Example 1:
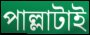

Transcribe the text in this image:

পাল্লাটাই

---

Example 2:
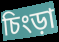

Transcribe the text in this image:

চিংড়া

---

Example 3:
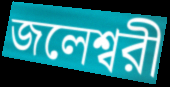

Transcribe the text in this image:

জলেশ্বরী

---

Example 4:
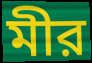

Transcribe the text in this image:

মীর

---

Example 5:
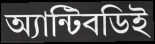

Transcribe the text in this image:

অ্যান্টিবডিই